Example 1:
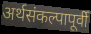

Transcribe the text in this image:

अर्थसंकल्पापूर्वी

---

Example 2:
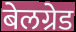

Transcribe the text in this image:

बेलग्रेड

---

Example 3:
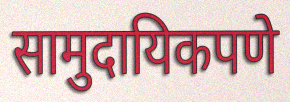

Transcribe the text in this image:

सामुदायिकपणे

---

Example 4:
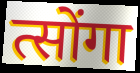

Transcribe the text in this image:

त्सोंगा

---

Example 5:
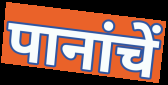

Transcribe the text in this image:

पानांचें